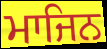
ਮਾਜਿਨ